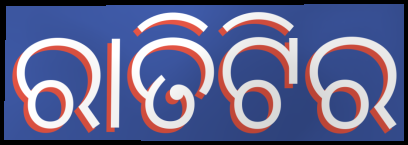
ରାତିଟିର